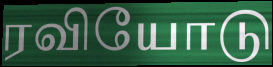
ரவியோடு